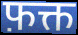
फ़क्त